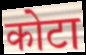
कोटा